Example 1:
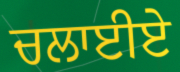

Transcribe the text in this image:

ਚਲਾਈਏ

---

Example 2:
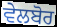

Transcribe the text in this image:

ਵੇਲਬੋਰ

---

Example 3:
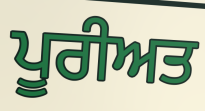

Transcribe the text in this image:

ਪੂਰੀਅਤ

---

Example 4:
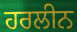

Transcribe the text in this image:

ਹਰਲੀਨ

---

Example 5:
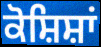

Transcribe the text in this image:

ਕੋਸ਼ਿਸ਼ਾਂ